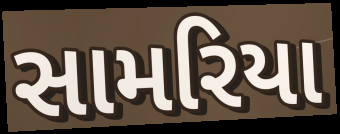
સામરિયા